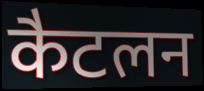
कैटलन